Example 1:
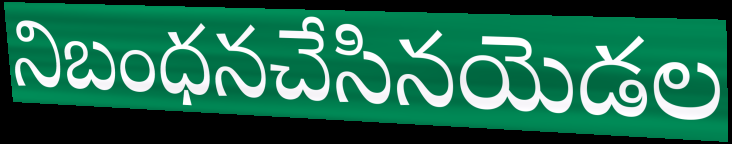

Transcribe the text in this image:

నిబంధనచేసినయెడల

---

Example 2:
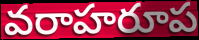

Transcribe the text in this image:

వరాహరూప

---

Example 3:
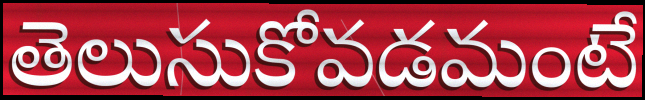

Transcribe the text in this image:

తెలుసుకోవడమంటే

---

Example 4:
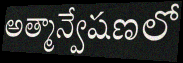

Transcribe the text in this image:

అత్మాన్వేషణలో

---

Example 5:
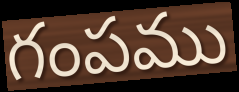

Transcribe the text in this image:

గంపము